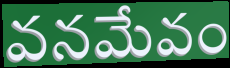
వనమేవం